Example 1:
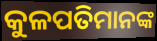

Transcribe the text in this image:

କୁଳପତିମାନଙ୍କ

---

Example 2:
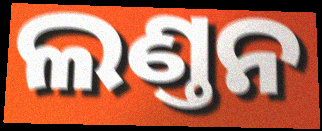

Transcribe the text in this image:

ଲଣ୍ତନ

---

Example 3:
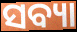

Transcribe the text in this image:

ସବ୍ୟା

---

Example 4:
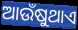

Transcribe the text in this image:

ଆଉଁଷୁଥାଏ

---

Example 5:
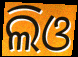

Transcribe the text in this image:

ଲିଓ